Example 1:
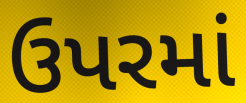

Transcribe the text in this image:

ઉપરમાં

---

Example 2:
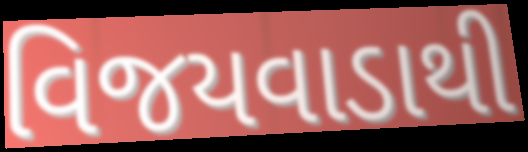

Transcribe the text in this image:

વિજયવાડાથી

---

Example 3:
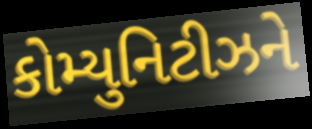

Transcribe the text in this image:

કોમ્યુનિટીઝને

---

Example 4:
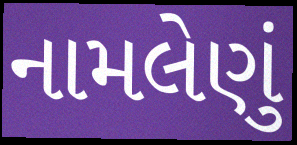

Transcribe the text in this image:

નામલેણું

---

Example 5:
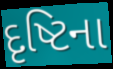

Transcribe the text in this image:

દૃષ્ટિના